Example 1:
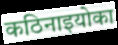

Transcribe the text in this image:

कठिनाइयोका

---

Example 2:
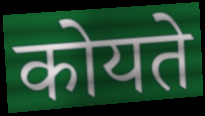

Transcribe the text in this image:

कोयते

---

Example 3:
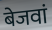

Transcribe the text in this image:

बेजवां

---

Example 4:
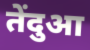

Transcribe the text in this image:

तेंदुआ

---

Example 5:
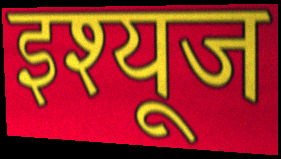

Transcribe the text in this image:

इश्यूज